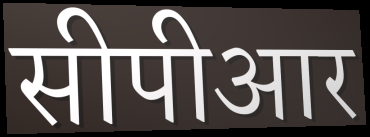
सीपीआर